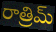
రాత్రిమ్